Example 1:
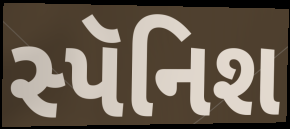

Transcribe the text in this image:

સ્પૅનિશ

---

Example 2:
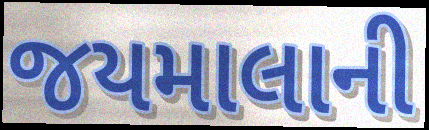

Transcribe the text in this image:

જયમાલાની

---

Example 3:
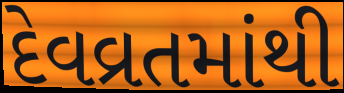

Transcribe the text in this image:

દેવવ્રતમાંથી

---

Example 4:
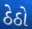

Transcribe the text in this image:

ઠેઠો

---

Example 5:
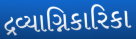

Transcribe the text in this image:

દ્રવ્યાગ્નિકારિકા